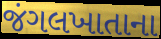
જંગલખાતાના